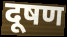
दूषण